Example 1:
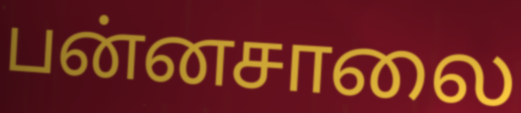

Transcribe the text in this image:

பன்னசாலை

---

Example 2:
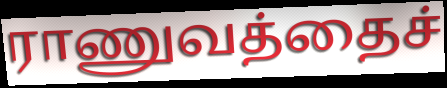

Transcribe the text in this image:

ராணுவத்தைச்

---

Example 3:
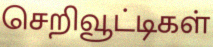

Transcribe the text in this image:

செறிவூட்டிகள்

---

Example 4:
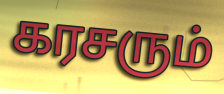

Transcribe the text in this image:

கரசரும்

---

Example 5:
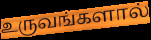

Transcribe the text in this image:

உருவங்களால்